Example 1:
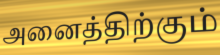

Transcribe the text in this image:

அனைத்திற்கும்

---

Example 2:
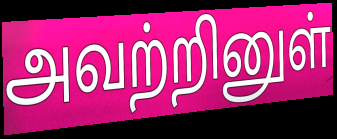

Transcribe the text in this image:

அவற்றினுள்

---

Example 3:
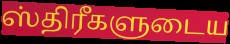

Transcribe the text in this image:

ஸ்திரீகளுடைய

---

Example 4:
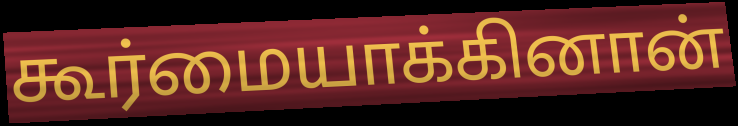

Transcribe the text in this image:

கூர்மையாக்கினான்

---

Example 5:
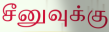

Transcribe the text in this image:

சீனுவுக்கு